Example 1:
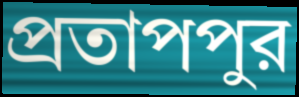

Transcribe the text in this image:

প্রতাপপুর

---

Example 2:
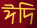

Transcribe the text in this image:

ঈদি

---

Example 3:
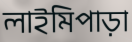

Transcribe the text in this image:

লাইমিপাড়া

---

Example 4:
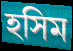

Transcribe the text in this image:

হসিম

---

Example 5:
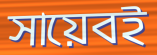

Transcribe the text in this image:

সায়েবই